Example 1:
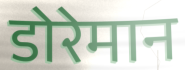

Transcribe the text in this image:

डोरेमान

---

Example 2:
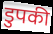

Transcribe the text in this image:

डुपकी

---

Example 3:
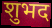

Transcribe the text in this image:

शुभद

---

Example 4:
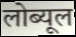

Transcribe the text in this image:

लोब्यूल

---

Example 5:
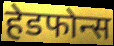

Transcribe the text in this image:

हेडफोन्स